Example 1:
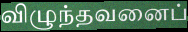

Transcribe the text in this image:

விழுந்தவனைப்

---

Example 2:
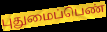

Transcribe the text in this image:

புதுமைப்பெண்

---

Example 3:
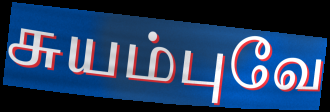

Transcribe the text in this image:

சுயம்புவே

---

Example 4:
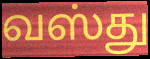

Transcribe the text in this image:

வஸ்து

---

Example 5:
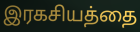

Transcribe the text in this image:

இரகசியத்தை